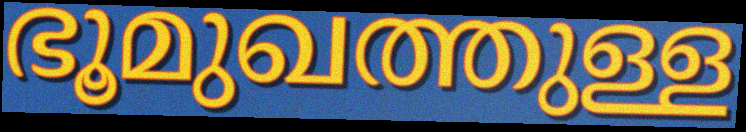
ഭൂമുഖത്തുള്ള